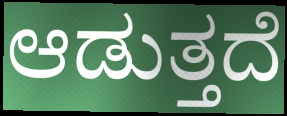
ಆಡುತ್ತದೆ